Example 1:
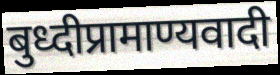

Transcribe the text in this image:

बुध्दीप्रामाण्यवादी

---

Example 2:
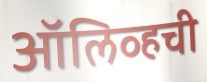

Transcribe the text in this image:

ऑलिव्हची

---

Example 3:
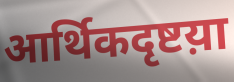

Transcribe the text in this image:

आर्थिकदृष्टय़ा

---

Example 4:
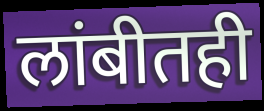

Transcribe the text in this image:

लांबीतही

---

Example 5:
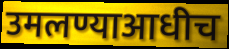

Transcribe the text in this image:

उमलण्याआधीच